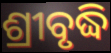
ଶ୍ରୀବୃଦ୍ଧି